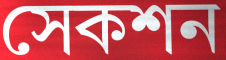
সেকশন